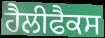
ਹੈਲੀਫੈਕਸ